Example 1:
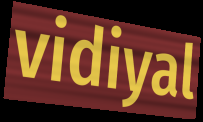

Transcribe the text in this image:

vidiyal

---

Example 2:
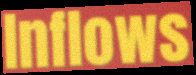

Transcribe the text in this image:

Inflows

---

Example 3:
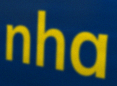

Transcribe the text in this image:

nha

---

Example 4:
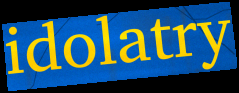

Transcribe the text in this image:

idolatry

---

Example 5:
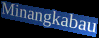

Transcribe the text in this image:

Minangkabau